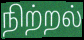
நிற்றல்